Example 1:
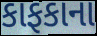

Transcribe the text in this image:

કાફકાના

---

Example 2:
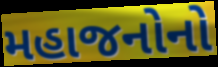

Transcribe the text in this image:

મહાજનોનો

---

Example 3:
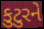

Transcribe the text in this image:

કુટુરને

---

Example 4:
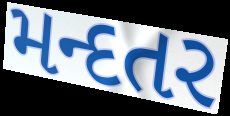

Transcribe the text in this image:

મન્દતર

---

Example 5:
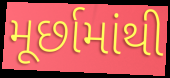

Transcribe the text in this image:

મૂર્છામાંથી